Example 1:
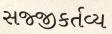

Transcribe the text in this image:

સજ્જીકર્તવ્ય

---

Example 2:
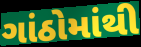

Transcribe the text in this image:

ગાંઠોમાંથી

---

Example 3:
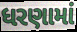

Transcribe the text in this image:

ધરણામાં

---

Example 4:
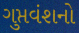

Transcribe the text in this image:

ગુપ્તવંશનો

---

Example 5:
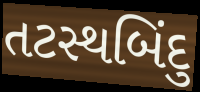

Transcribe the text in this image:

તટસ્થબિંદુ